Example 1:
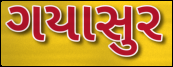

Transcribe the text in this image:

ગયાસુર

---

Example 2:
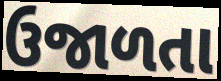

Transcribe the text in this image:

ઉજાળતા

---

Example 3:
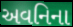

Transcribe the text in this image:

અવનિના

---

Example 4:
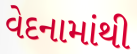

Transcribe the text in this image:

વેદનામાંથી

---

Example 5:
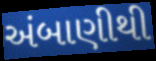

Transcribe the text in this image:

અંબાણીથી